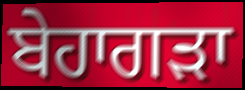
ਬੇਹਾਗੜਾ